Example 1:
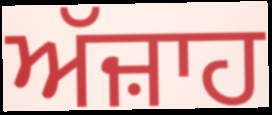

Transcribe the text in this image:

ਅੱਜ਼ਾਹ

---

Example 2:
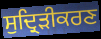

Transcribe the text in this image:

ਸੁਦ੍ਰਿੜੀਕਰਣ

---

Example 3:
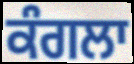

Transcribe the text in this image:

ਕੰਗਲਾ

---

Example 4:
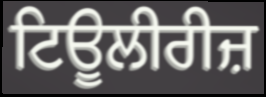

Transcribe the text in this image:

ਟਿਊਲੀਰੀਜ਼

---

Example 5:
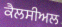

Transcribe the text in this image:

ਕੈਲਸੀਅਲ